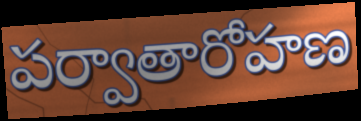
పర్వాతారోహణ